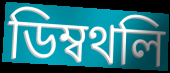
ডিম্বথলি